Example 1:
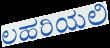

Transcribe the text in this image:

ಲಹರಿಯಲಿ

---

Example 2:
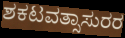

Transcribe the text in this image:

ಶಕಟವತ್ಸಾಸುರರ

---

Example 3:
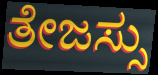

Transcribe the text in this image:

ತೇಜಸ್ಸು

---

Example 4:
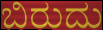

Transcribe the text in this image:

ಬಿರುದು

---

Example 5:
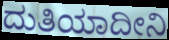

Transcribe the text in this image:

ದುತಿಯಾದೀನಿ